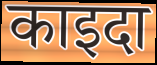
काइदा